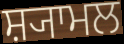
ਸ਼੍ਯਾਮਲ